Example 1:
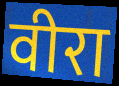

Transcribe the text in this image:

वीरा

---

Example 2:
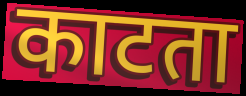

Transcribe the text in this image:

काटता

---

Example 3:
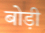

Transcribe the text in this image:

बोड़ी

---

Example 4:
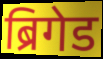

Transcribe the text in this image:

ब्रिगेड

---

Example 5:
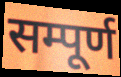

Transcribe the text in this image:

सम्पूर्ण